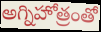
అగ్నిహోత్రంతో